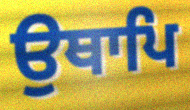
ਉਥਾਪਿ